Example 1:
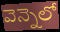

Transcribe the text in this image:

వెన్నెలో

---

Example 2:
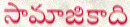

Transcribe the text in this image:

సామాజికాది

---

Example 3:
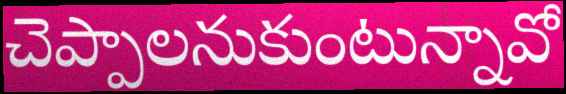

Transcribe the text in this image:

చెప్పాలనుకుంటున్నావో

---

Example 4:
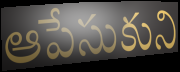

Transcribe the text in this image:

ఆపేసుకుని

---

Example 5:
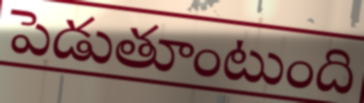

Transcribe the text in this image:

పెడుతూంటుంది